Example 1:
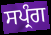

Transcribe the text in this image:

ਸਪ੍ਰੰਗ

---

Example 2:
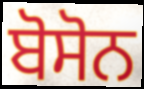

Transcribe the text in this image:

ਬੋਸੋਨ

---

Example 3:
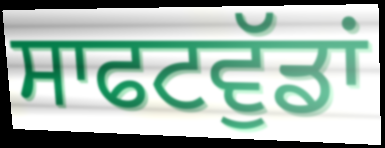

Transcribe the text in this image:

ਸਾਫਟਵੁੱਡਾਂ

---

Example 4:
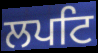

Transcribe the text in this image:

ਲਪਟਿ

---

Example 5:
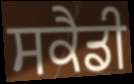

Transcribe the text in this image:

ਸਕੈਡੀ